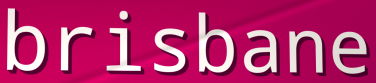
brisbane